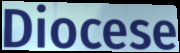
Diocese